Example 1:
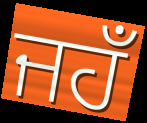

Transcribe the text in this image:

ਜਹਁ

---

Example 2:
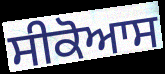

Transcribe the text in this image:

ਸੀਕੋਆਸ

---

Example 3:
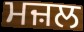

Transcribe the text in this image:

ਮਜ਼ਲ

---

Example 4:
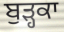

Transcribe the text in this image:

ਬੁੜ੍ਹਕਾ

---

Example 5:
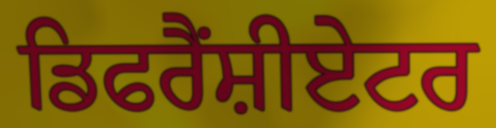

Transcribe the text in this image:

ਡਿਫਰੈਂਸ਼ੀਏਟਰ